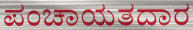
ಪಂಚಾಯತದಾರ